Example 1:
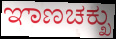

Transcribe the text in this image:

ಞಾಣಚಕ್ಖು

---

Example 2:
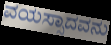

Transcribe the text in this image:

ವಯಸ್ಸಾದವನು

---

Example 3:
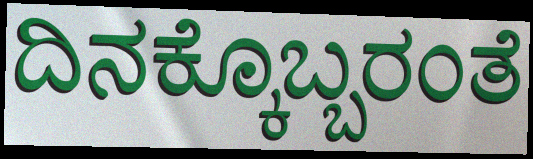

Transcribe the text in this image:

ದಿನಕ್ಕೊಬ್ಬರಂತೆ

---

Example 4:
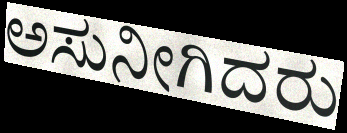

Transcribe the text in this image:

ಅಸುನೀಗಿದರು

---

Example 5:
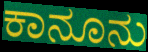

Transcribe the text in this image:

ಕಾನೂನು